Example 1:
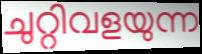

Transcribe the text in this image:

ചുറ്റിവളയുന്ന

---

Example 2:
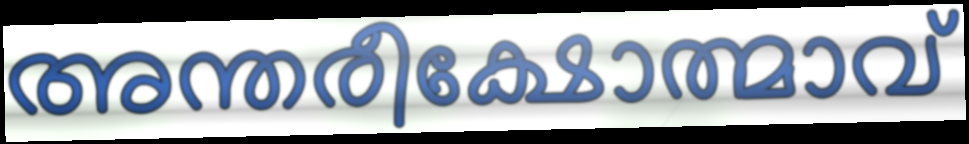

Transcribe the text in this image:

അന്തരീക്ഷോത്മാവ്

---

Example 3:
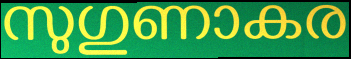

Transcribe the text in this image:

സുഗുണാകര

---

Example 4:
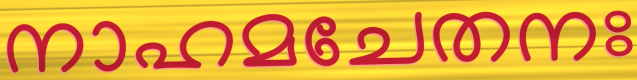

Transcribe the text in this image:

നാഹമചേതനഃ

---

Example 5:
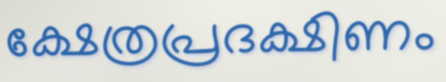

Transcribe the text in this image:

ക്ഷേത്രപ്രദക്ഷിണം